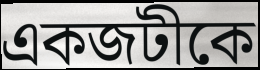
একজটীকে